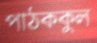
পাঠককুল